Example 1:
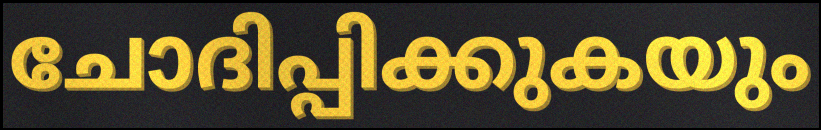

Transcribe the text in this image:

ചോദിപ്പിക്കുകയും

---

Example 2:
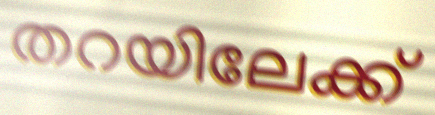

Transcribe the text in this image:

തറയിലേക്ക്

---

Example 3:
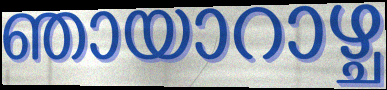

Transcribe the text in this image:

ഞായാറാഴ്ച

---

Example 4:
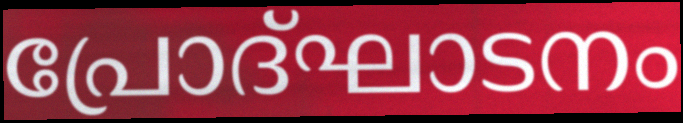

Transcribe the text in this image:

പ്രോദ്ഘാടനം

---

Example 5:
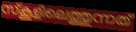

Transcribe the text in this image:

സ്കൂളിലെത്തുന്നത്